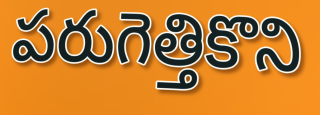
పరుగెత్తికొని